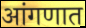
आंगणात